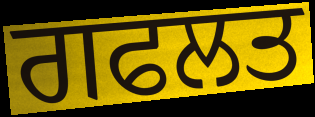
ਗਫਲਤ